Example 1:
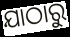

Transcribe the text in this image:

ଯାଠାରୁ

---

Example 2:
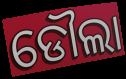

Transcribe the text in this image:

ଡୌଲା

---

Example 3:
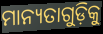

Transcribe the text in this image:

ମାନ୍ୟତାଗୁଡ଼ିକୁ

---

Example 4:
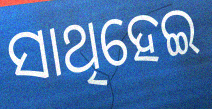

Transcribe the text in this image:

ସାଥିହେଇ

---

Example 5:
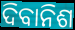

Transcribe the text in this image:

ଦିବାନିଶ